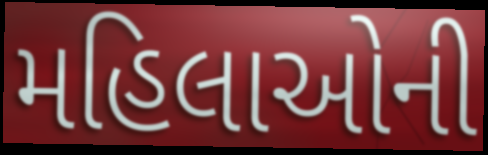
મહિલાઓની